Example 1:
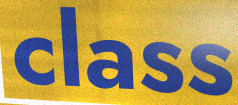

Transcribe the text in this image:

class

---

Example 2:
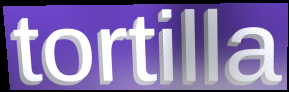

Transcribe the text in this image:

tortilla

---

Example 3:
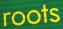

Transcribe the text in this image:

roots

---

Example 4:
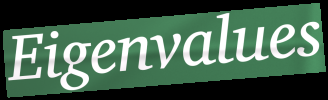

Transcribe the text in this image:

Eigenvalues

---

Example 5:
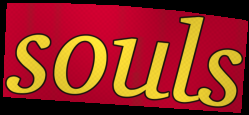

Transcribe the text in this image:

souls